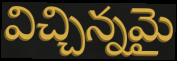
విచ్చిన్నమై